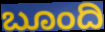
ಬೂಂದಿ